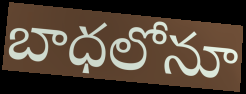
బాధలోనూ